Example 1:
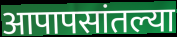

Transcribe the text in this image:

आपापसांतल्या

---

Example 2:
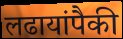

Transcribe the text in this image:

लढायांपैकी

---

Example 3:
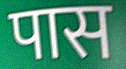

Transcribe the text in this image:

पास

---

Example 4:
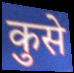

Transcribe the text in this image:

कुसे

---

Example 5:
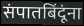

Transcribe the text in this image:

संपातबिंदूंना